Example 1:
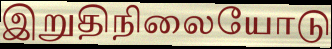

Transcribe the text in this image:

இறுதிநிலையோடு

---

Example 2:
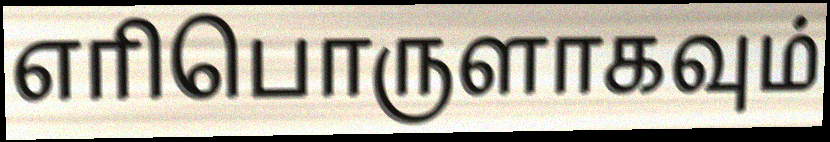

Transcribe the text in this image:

எரிபொருளாகவும்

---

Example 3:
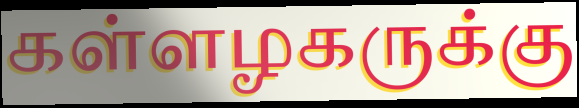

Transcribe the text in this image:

கள்ளழகருக்கு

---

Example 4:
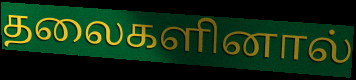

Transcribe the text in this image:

தலைகளினால்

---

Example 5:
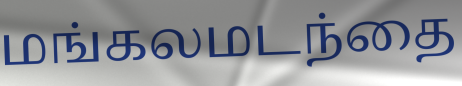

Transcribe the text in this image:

மங்கலமடந்தை